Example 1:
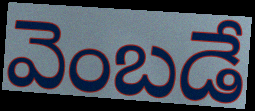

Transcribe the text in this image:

వెంబడే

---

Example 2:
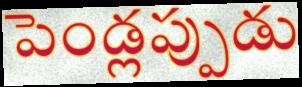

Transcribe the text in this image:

పెండ్లప్పుడు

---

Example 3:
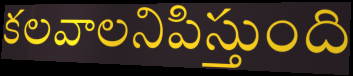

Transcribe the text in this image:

కలవాలనిపిస్తుంది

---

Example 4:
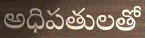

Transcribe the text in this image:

అధిపతులతో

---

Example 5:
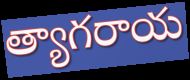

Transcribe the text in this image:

త్యాగరాయ